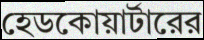
হেডকোয়ার্টারের